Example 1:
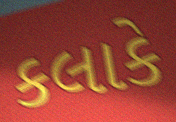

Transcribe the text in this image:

કલાકે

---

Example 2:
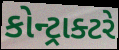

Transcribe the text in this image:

કોન્ટ્રાક્ટરે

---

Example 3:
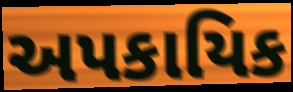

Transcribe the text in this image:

અપકાયિક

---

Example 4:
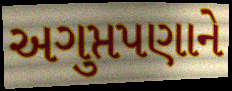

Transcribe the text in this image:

અગુપ્તપણાને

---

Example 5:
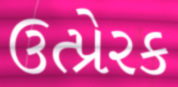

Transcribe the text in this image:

ઉત્પ્રેરક